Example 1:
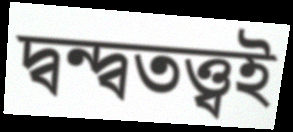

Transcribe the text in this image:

দ্বন্দ্বতত্ত্বই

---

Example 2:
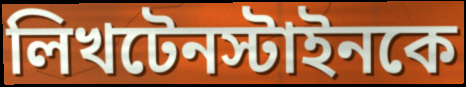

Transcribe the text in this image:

লিখটেনস্টাইনকে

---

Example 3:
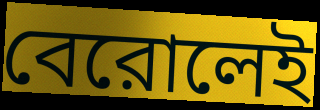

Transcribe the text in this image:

বেরোলেই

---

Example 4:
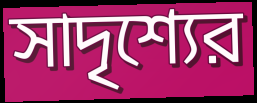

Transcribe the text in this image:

সাদৃশ্যের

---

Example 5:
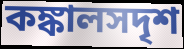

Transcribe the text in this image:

কঙ্কালসদৃশ